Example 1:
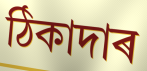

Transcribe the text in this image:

ঠিকাদাৰ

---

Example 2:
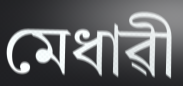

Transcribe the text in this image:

মেধাৱী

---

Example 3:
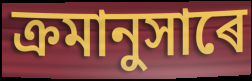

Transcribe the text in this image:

ক্ৰমানুসাৰে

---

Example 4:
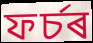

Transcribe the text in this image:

ফৰ্চৰ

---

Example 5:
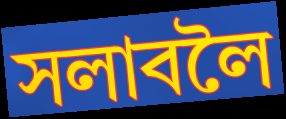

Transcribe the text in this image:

সলাবলৈ